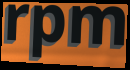
rpm